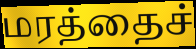
மரத்தைச்